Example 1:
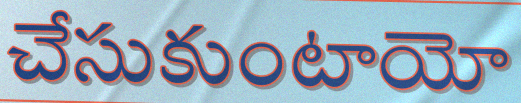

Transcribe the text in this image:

చేసుకుంటాయో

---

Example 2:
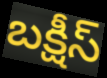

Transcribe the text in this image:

బక్షీస్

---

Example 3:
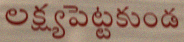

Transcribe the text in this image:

లక్ష్యపెట్టకుండ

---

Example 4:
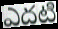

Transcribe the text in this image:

ఎదటి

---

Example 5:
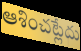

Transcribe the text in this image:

ఆశించట్లేదు